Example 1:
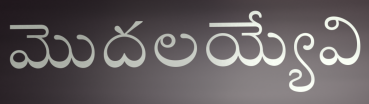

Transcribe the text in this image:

మొదలయ్యేవి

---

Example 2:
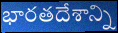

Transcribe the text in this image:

భారతదేశాన్ని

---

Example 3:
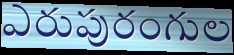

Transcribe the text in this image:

ఎరుపురంగుల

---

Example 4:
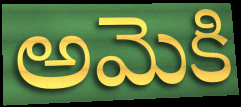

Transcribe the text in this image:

అమెకి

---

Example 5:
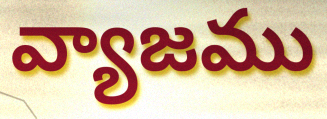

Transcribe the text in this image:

వ్యాజము